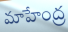
మాహేంద్ర